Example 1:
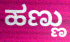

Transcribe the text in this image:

ಹಣ್ಣು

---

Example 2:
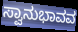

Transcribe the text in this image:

ಸ್ವಾನುಭಾವವ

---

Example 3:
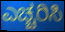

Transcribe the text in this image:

ಎಚ್ಚರಿಸಿ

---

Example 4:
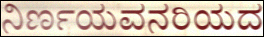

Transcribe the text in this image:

ನಿರ್ಣಯವನರಿಯದ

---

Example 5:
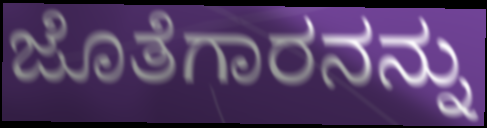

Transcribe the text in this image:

ಜೊತೆಗಾರನನ್ನು